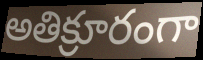
అతిక్రూరంగా